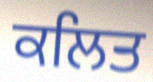
ਕਲਿਤ